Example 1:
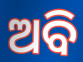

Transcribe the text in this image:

ଅବି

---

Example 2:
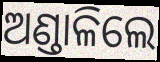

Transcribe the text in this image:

ଅଣ୍ଡାଳିଲେ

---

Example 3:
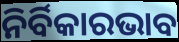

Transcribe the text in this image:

ନିର୍ବିକାରଭାବ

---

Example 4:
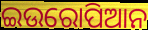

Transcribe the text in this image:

ଇଉରୋପିଆନ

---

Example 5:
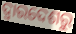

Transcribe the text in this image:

ଦ୍ଵାରଦେଶରୁ